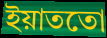
ইয়াততো